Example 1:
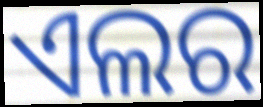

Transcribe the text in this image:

ଏଲର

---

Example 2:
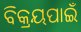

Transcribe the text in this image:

ବିକ୍ରୟପାଇଁ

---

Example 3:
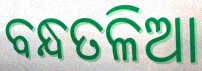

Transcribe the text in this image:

ବନ୍ଧତଳିଆ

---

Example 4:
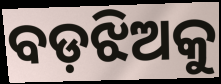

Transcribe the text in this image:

ବଡ଼ଝିଅକୁ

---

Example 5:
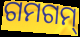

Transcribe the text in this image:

ଗମଗମ୍